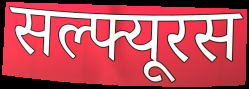
सल्फ्यूरस